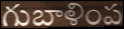
గుబాళింప